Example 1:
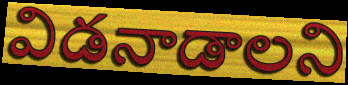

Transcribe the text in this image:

విడనాడాలని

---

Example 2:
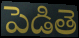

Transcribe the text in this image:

పెడితె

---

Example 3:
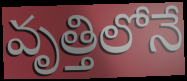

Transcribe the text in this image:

వృత్తిలోనే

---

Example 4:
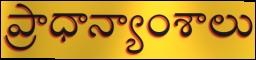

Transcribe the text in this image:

ప్రాధాన్యాంశాలు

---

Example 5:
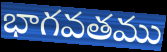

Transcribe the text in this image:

భాగవతము